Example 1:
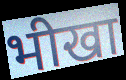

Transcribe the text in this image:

भीखा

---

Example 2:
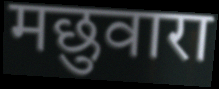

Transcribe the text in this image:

मछुवारा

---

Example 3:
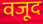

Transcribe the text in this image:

वजूद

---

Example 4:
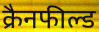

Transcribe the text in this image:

क्रैनफील्ड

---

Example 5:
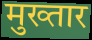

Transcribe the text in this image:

मुख्‍तार